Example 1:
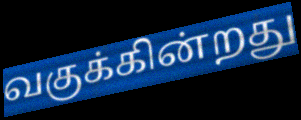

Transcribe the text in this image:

வகுக்கின்றது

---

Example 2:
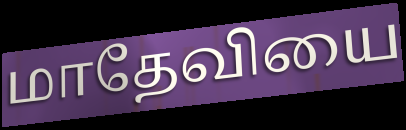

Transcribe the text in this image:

மாதேவியை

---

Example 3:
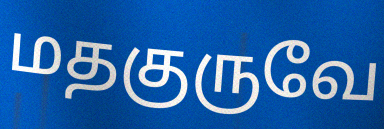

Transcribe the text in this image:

மதகுருவே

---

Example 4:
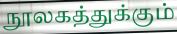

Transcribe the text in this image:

நூலகத்துக்கும்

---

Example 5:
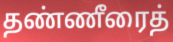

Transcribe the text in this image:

தண்ணீரைத்